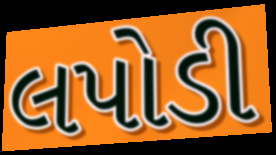
લપોડી